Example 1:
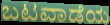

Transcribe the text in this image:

ಬಟವಾಡೆಯ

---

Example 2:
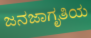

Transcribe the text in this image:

ಜನಜಾಗೃತಿಯ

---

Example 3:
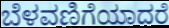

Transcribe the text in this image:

ಬೆಳವಣಿಗೆಯಾದರೆ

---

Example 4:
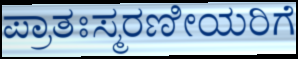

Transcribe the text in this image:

ಪ್ರಾತಃಸ್ಮರಣೀಯರಿಗೆ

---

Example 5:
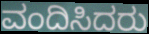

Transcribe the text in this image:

ವಂದಿಸಿದರು